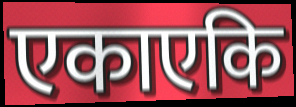
एकाएकि